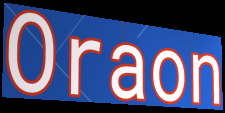
Oraon